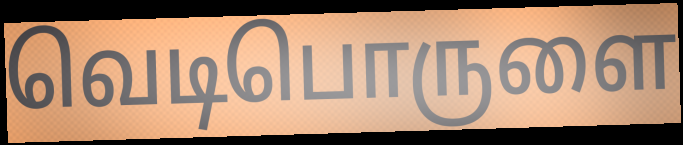
வெடிபொருளை